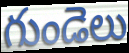
గుండెలు